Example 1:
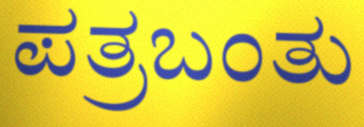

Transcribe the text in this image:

ಪತ್ರಬಂತು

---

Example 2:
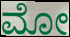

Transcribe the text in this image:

ಮೋ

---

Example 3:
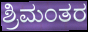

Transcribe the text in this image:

ಶ್ರಿಮಂತರ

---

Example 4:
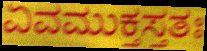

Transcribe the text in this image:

ಏವಮುಕ್ತಸ್ತತಃ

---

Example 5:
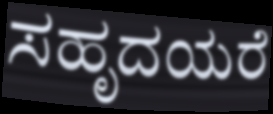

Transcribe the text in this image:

ಸಹೃದಯರೆ